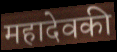
महादेवकी